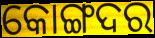
କୋଙ୍ଗଦର